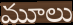
మూలు